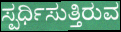
ಸ್ಪರ್ಧಿಸುತ್ತಿರುವ